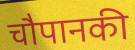
चौपानकी